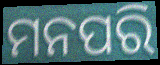
ମନପରି